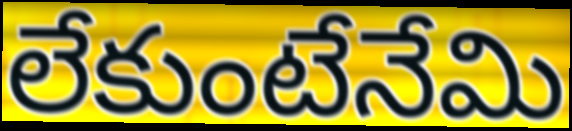
లేకుంటేనేమి